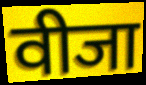
वीजा